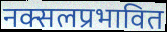
नक्सलप्रभावित